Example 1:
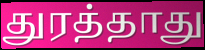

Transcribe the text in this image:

துரத்தாது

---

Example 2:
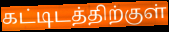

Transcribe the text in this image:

கட்டிடத்திற்குள்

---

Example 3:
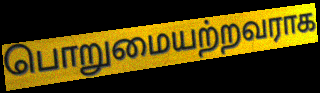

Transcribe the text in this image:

பொறுமையற்றவராக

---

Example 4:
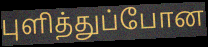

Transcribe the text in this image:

புளித்துப்போன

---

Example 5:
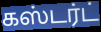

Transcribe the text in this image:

கஸ்டர்ட்